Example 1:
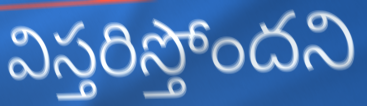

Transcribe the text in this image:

విస్తరిస్తోందని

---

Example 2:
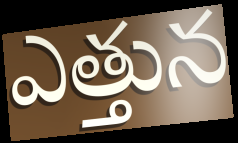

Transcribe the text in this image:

ఎత్తున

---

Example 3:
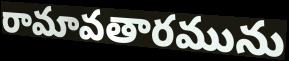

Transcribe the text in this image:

రామావతారమును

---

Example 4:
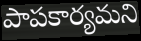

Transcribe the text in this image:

పాపకార్యమని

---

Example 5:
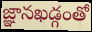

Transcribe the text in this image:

జ్ఞానఖడ్గంతో